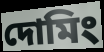
দোমিং